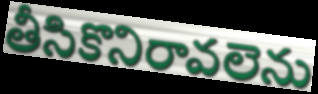
తీసికొనిరావలెను